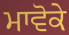
ਮਾਵੋਕੇ